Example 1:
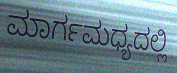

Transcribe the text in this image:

ಮಾರ್ಗಮಧ್ಯದಲ್ಲಿ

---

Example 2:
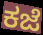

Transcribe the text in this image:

ಕಜೆ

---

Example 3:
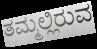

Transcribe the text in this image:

ತಮ್ಮಲ್ಲಿರುವ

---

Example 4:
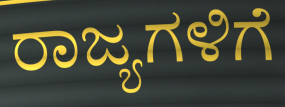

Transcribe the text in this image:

ರಾಜ್ಯಗಳಿಗೆ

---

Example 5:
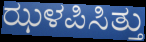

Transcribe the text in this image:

ಝಳಪಿಸಿತ್ತು